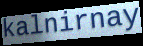
kalnirnay